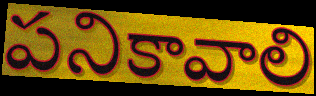
పనికావాలి